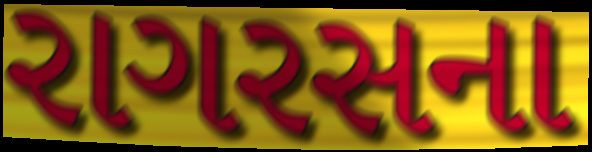
રાગરસના